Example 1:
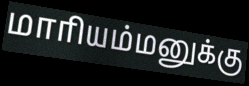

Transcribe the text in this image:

மாரியம்மனுக்கு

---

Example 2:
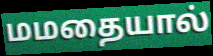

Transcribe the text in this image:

மமதையால்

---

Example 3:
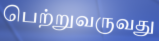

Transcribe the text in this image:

பெற்றுவருவது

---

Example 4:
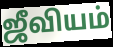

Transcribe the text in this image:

ஜீவியம்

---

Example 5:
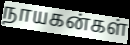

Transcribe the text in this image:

நாயகன்கள்